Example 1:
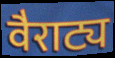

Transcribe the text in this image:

वैराट्य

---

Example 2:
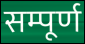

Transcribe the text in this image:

सम्‍पूर्ण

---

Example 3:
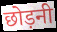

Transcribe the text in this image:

छोड़नी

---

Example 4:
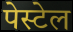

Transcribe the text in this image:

पेस्टेल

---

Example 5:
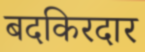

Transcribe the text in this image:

बदकिरदार